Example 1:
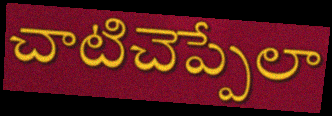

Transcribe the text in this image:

చాటిచెప్పేలా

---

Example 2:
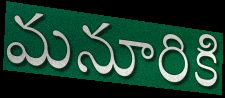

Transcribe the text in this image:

మనూరికి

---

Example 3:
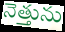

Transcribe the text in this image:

నెత్తును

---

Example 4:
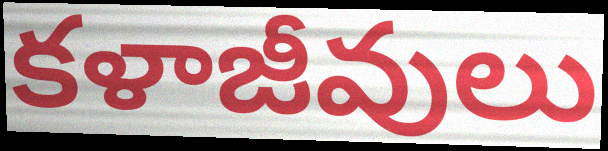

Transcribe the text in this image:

కళాజీవులు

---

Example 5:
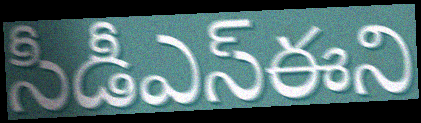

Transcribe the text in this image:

సీడీఎస్ఈని